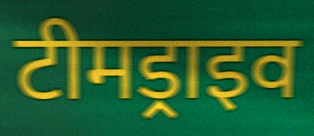
टीमड्राइव